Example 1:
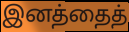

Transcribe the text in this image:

இனத்தைத்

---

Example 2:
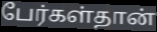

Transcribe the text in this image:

பேர்கள்தான்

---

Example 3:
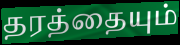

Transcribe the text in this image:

தரத்தையும்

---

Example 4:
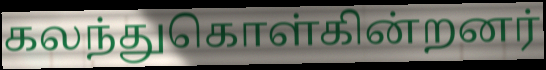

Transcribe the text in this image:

கலந்துகொள்கின்றனர்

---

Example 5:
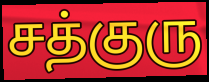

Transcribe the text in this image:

சத்குரு